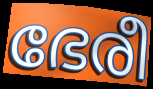
ഭേരീ